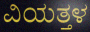
ವಿಯತ್ತಳ